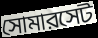
সোমারসেট